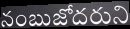
నంబుజోదరుని